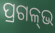
ପ୍ରଗଳ୍‌ଭ